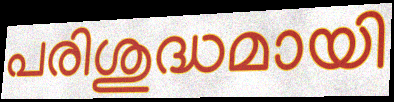
പരിശുദ്ധമായി